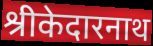
श्रीकेदारनाथ